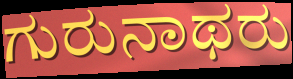
ಗುರುನಾಥರು